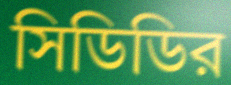
সিডিডির